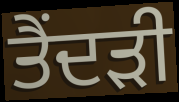
ਤੈਂਦੜੀ